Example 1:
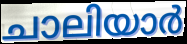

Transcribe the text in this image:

ചാലിയാർ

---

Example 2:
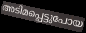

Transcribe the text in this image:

അടിമപ്പെട്ടുപോയ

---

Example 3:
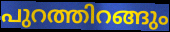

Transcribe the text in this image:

പുറത്തിറങ്ങും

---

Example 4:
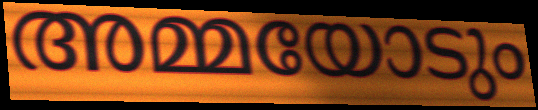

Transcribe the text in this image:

അമ്മയോടും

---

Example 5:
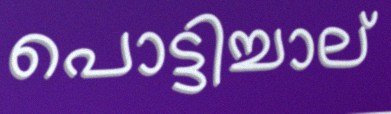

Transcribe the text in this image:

പൊട്ടിച്ചാല്